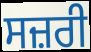
ਸਜ਼ਰੀ